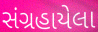
સંગ્રહાયેલા